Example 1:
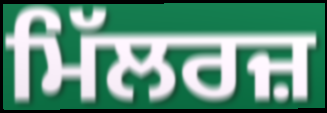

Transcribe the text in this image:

ਮਿੱਲਰਜ਼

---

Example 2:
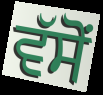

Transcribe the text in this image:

ਵੱਸੋਂ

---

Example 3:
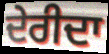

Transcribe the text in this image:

ਦੇਰੀਦਾ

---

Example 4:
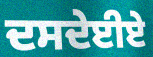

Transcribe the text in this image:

ਦਸਦੇਈਏ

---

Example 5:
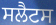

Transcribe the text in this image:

ਸਲੈਟਸ